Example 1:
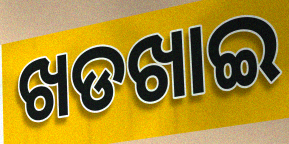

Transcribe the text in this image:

ଖଡଖାଇ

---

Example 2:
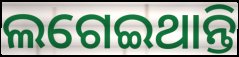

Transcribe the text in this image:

ଲଗେଇଥାନ୍ତି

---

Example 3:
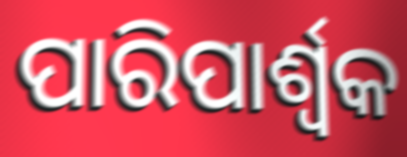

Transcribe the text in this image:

ପାରିପାର୍ଶ୍ଵକ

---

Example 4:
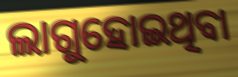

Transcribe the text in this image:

ଲାଗୁହୋଇଥିବା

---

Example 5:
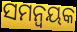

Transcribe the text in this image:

ସମନ୍ୱୟକ